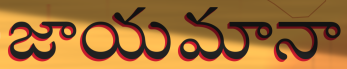
జాయమానా